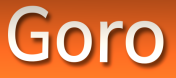
Goro